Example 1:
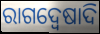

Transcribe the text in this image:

ରାଗଦ୍ୱେଷାଦି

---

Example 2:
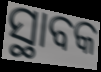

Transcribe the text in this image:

ସ୍ଥାବକ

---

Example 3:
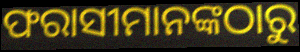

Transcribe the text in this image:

ଫରାସୀମାନଙ୍କଠାରୁ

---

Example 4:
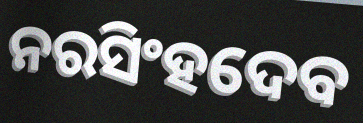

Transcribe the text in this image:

ନରସିଂହଦେବ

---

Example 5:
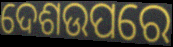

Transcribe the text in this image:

ଦେଶଉପରେ